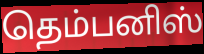
தெம்பனிஸ்